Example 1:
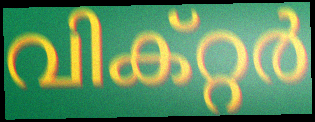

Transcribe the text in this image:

വിക്റ്റർ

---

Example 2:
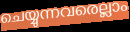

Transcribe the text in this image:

ചെയ്യുന്നവരെല്ലാം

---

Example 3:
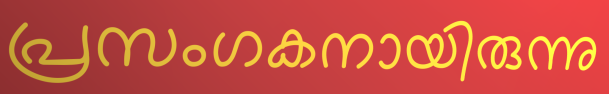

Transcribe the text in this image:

പ്രസംഗകനായിരുന്നു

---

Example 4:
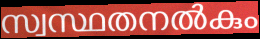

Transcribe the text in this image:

സ്വസ്ഥതനൽകും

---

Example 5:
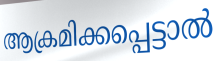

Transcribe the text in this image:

ആക്രമിക്കപ്പെട്ടാൽ